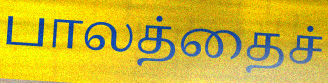
பாலத்தைச்